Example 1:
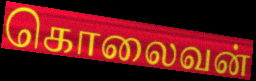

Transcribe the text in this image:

கொலைவன்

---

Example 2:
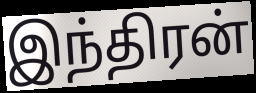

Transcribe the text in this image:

இந்திரன்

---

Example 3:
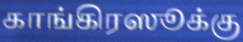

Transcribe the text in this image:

காங்கிரஸூக்கு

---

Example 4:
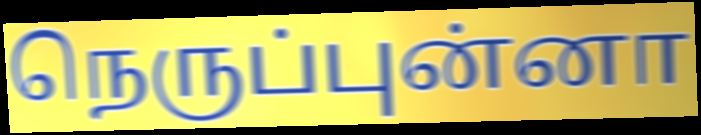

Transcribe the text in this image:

நெருப்புன்னா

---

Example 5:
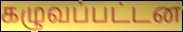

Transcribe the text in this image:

கழுவப்பட்டன